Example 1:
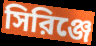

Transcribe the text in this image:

সিরিঞ্জে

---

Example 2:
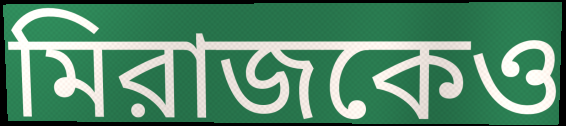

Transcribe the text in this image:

মিরাজকেও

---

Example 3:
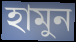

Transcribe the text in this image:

হামুন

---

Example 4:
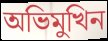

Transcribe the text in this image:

অভিমুখিন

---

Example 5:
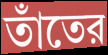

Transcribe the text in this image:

তাঁতের